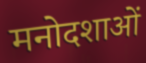
मनोदशाओं